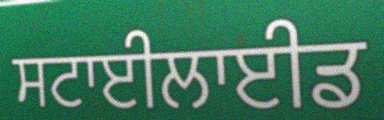
ਸਟਾਈਲਾਈਡ